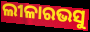
ଲୀଳାରଭସୁ